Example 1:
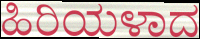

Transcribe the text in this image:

ಹಿರಿಯಳಾದ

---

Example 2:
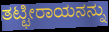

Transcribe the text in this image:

ತಟ್ಟೀರಾಯನನ್ನು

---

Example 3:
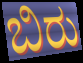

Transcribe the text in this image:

ಬಿರು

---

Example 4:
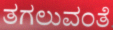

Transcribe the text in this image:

ತಗಲುವಂತೆ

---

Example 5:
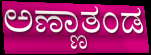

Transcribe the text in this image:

ಅಣ್ಣಾತಂಡ